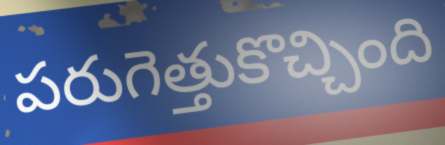
పరుగెత్తుకొచ్చింది